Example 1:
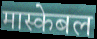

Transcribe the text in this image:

मास्केबल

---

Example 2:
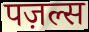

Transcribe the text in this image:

पज़ल्स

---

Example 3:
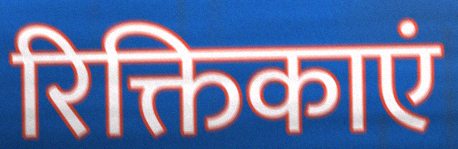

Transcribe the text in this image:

रिक्तिकाएं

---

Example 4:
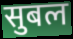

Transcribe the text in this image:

सुबल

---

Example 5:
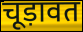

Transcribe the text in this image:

चूड़ावत